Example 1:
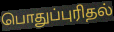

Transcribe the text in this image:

பொதுப்புரிதல்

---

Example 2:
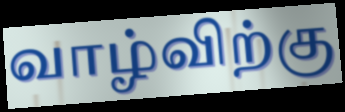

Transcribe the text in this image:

வாழ்விற்கு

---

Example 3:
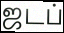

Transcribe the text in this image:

ஜடப்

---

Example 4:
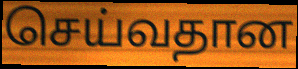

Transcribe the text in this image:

செய்வதான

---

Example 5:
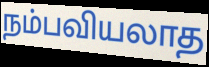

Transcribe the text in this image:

நம்பவியலாத